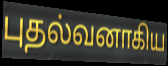
புதல்வனாகிய